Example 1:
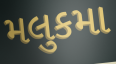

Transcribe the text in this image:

મલુકમા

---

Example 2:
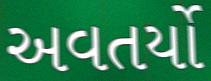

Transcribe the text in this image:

અવતર્યો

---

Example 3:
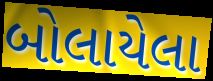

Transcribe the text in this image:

બોલાયેલા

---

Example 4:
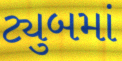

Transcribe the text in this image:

ટ્યુબમાં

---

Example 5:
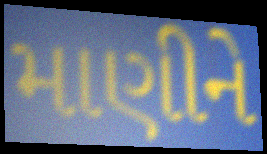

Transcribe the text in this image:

માણીને